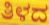
ತಿಳದ